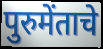
पुरुमेंताचे